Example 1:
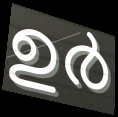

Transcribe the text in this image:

ഉർ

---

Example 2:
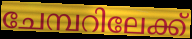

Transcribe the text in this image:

ചേമ്പറിലേക്ക്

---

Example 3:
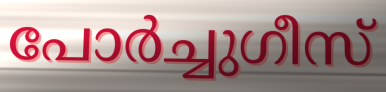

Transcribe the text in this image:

പോർച്ചുഗീസ്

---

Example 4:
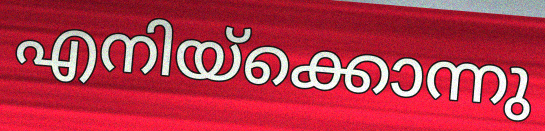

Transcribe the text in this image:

എനിയ്ക്കൊന്നു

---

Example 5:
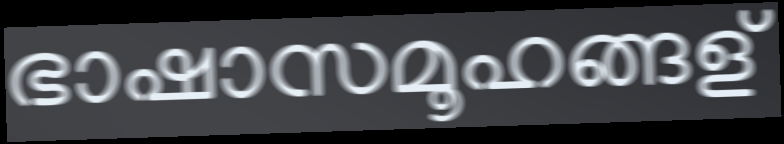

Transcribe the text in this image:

ഭാഷാസമൂഹങ്ങള്